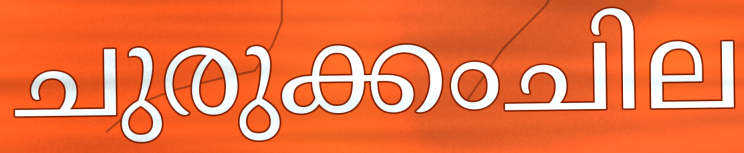
ചുരുക്കംചില